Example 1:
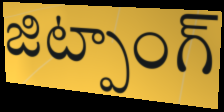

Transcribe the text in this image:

జిట్పాంగ్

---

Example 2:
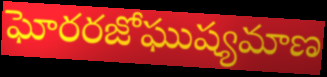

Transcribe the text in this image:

ఘోరరజోఘుష్యమాణ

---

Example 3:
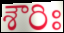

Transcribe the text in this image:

శౌరిః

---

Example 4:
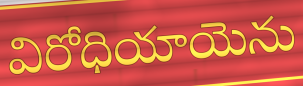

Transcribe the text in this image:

విరోధియాయెను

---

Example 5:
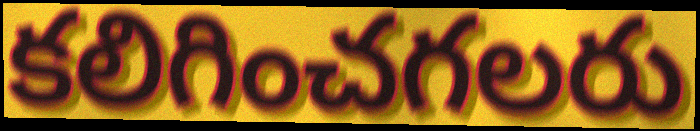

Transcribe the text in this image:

కలిగించగలరు